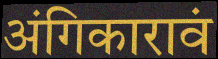
अंगिकारावं